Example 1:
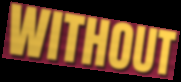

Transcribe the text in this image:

WITHOUT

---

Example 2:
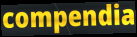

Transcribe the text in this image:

compendia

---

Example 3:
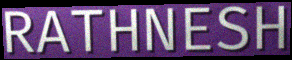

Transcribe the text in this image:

RATHNESH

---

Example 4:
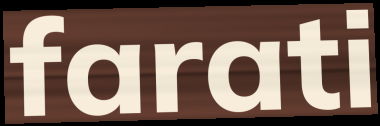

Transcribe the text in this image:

farati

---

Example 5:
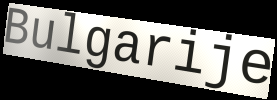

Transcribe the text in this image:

Bulgarije